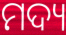
ମଦ୍ୟ